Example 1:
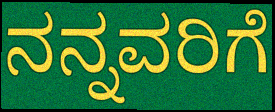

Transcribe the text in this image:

ನನ್ನವರಿಗೆ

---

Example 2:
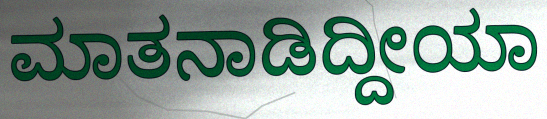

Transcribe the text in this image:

ಮಾತನಾಡಿದ್ದೀಯಾ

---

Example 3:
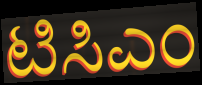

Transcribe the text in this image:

ಟಿಸಿಎಂ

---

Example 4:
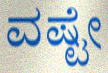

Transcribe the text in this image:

ವಷ್ಟೇ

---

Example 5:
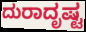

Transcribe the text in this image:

ದುರಾದೃಷ್ಟ